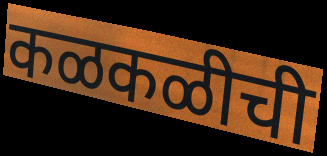
कळकळीची